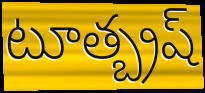
టూత్బ్రష్